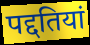
पद्दतियां